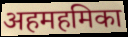
अहमहमिका